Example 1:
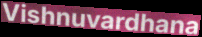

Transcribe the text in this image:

Vishnuvardhana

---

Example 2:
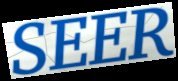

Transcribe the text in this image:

SEER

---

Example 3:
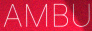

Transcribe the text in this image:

AMBU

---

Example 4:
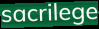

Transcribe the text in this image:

sacrilege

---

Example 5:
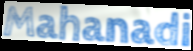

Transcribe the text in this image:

Mahanadi